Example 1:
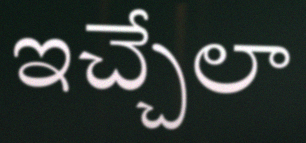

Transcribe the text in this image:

ఇచ్చేలా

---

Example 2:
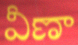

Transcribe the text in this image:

వీణా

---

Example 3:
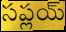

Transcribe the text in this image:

సప్లయ్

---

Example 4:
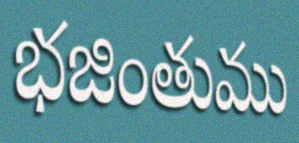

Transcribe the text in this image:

భజింతుము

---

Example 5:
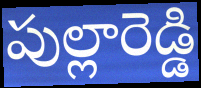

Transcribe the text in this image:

పుల్లారెడ్డి